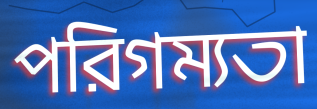
পরিগম্যতা